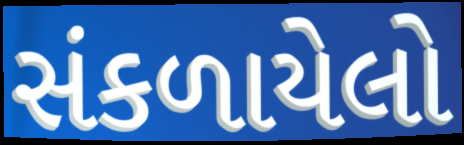
સંકળાયેલો